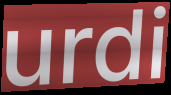
urdi